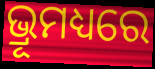
ଭ୍ରୂମଧ୍ୟରେ